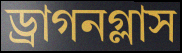
ড্রাগনগ্লাস